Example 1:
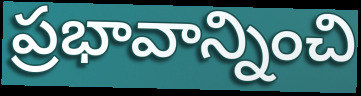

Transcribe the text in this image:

ప్రభావాన్నించి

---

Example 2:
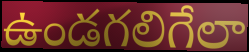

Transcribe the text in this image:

ఉండగలిగేలా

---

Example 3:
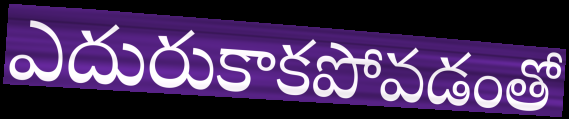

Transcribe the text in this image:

ఎదురుకాకపోవడంతో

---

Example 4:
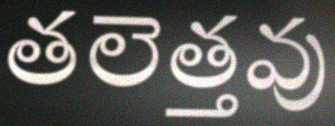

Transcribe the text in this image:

తలెత్తవు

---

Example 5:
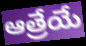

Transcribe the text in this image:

ఆత్రేయే